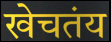
खेचतंय